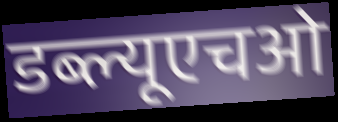
डब्ल्यूएचओ